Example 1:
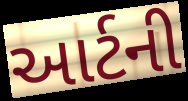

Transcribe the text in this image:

આર્ટની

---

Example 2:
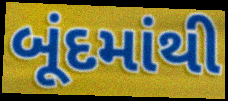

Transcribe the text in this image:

બૂંદમાંથી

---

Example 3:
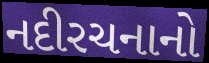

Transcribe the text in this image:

નદીરચનાનો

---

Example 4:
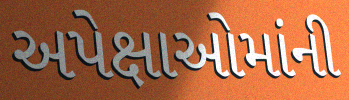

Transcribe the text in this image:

અપેક્ષાઓમાંની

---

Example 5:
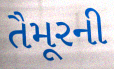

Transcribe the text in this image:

તૈમૂરની